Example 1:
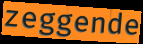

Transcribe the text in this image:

zeggende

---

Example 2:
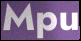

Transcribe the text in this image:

Mpu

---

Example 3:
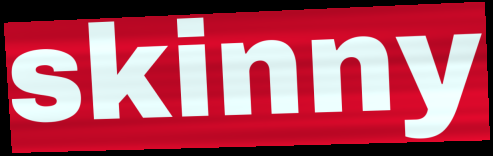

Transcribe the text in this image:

skinny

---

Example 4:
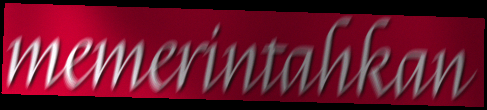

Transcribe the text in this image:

memerintahkan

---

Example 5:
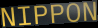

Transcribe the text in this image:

NIPPON